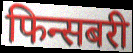
फिन्सबरी